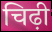
चिढ़ी